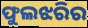
ଫୁଲଝରିର